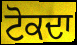
ਟੋਕਦਾ